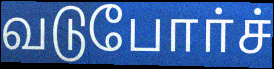
வடுபோர்ச்